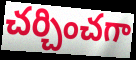
చర్చించగా